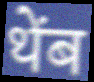
थेंब